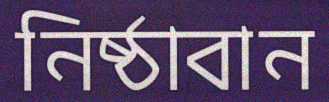
নিষ্ঠাবান